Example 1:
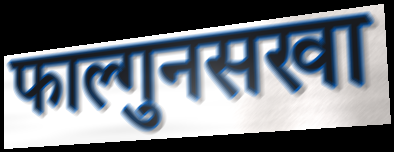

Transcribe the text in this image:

फाल्गुनसखा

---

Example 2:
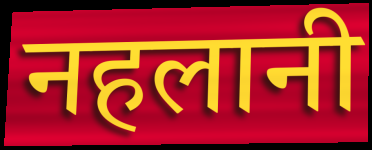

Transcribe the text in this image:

नहलानी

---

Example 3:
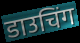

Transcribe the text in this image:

डाउचिंग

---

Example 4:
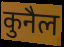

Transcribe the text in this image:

कुनैल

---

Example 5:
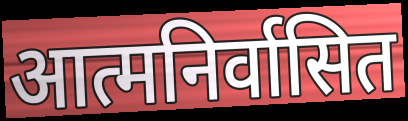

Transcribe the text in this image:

आत्मनिर्वासित